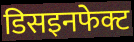
डिसइनफेक्ट